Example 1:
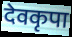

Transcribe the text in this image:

देवकृपा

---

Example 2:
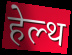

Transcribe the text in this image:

हेल्थ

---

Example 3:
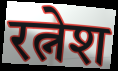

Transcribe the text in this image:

रत्नेश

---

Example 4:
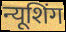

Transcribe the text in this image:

न्यूशिंग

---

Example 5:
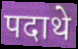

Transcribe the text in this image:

पदाथे